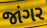
જાંગર